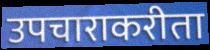
उपचाराकरीता